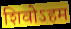
शिवोऽहम